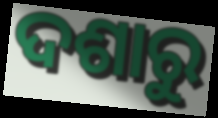
ଦଶାରୁ